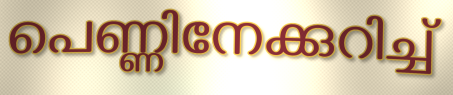
പെണ്ണിനേക്കുറിച്ച്